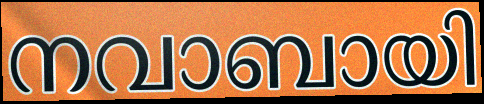
നവാബായി